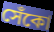
সেঁকো